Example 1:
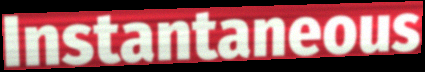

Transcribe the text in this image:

Instantaneous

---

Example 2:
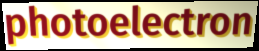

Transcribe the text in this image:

photoelectron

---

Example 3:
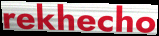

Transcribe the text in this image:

rekhecho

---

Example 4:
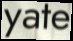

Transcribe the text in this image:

yate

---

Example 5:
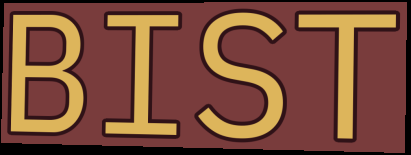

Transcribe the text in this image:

BIST